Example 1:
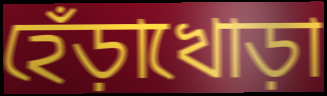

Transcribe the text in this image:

হেঁড়াখোড়া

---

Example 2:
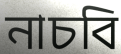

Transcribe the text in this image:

নাচবি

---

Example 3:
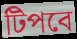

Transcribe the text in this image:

টিপবে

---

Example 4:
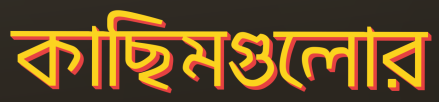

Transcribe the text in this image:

কাছিমগুলোর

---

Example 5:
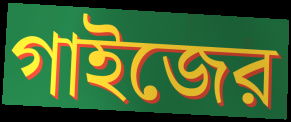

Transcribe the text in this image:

গাইজের